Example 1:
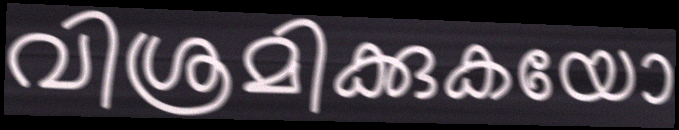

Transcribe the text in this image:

വിശ്രമിക്കുകയോ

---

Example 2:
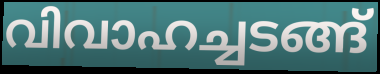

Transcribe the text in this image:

വിവാഹച്ചടങ്ങ്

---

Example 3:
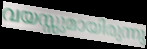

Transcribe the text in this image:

വയസ്സുമായിരുന്നു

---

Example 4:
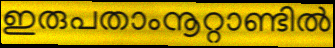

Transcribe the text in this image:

ഇരുപതാംനൂറ്റാണ്ടിൽ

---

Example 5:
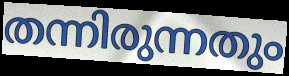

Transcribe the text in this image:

തന്നിരുന്നതും